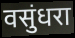
वसुंधरा